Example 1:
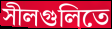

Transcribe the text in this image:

সীলগুলিতে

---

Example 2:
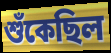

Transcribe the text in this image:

শুঁকেছিল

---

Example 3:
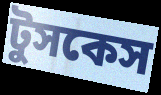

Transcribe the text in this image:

টুসকেস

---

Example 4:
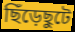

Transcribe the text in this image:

ছিঁড়েছুটে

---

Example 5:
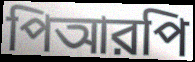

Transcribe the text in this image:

পিআরপি